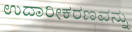
ಉದಾರೀಕರಣವನ್ನು